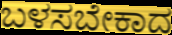
ಬಳಸಬೇಕಾದ